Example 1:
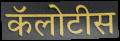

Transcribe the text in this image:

कॅलोटीस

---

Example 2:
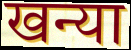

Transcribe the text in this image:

खन्या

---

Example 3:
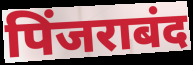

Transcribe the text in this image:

पिंजराबंद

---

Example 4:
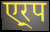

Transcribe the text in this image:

एर्प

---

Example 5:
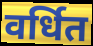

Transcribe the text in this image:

वर्धित